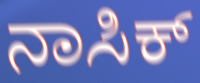
ನಾಸಿಕ್